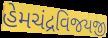
હેમચંદ્રવિજયજી